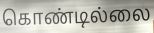
கொண்டில்லை